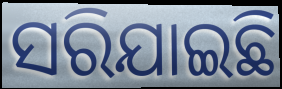
ସରିଯାଇଛି